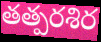
తత్పరశిర